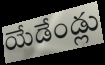
యేడేండ్లు